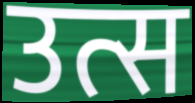
उत्स